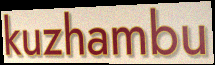
kuzhambu